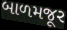
બાળમજૂર